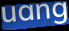
uang